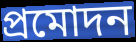
প্রমোদন